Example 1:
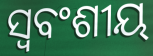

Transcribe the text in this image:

ସ୍ଵବଂଶୀୟ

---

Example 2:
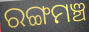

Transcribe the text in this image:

ରଙ୍ଗମଞ୍ଚ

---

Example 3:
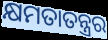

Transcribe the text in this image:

କ୍ଷମତାତନ୍ତ୍ରର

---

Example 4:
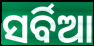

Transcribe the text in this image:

ସର୍ବିଆ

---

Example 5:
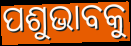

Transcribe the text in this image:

ପଶୁଭାବକୁ